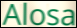
Alosa